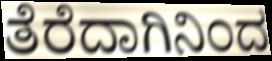
ತೆರೆದಾಗಿನಿಂದ